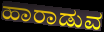
ಹಾರಾಡುವ